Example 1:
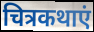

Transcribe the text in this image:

चित्रकथाएं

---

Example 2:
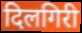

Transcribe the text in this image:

दिलगिरी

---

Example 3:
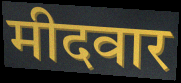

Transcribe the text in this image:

मीदवार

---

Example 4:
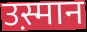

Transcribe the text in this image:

उ़स्मान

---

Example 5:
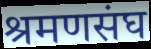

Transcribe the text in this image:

श्रमणसंघ